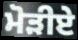
ਮੋੜੀਏ